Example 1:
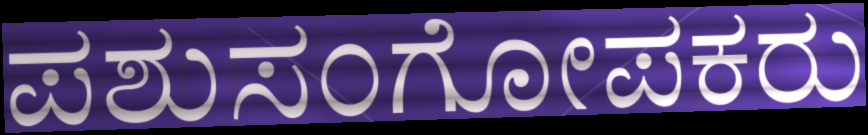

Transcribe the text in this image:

ಪಶುಸಂಗೋಪಕರು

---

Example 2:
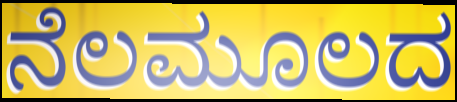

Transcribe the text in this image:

ನೆಲಮೂಲದ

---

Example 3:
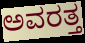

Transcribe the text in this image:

ಅವರತ್ತ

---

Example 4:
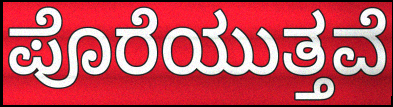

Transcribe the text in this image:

ಪೊರೆಯುತ್ತವೆ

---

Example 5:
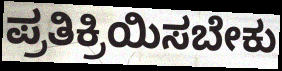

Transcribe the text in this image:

ಪ್ರತಿಕ್ರಿಯಿಸಬೇಕು